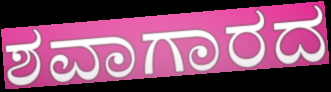
ಶವಾಗಾರದ